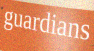
guardians